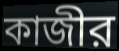
কাজীর